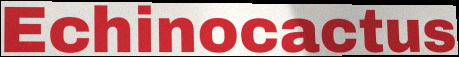
Echinocactus